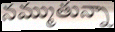
నమ్ముతున్నా